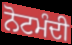
ਨੋਟਮੰਦੀ